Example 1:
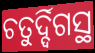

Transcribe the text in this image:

ଚତୁର୍ଦ୍ଦିଗସ୍ଥ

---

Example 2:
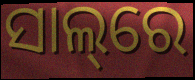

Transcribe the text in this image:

ସାଲ୍‌ରେ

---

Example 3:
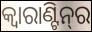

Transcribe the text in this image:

କ୍ବାରାଣ୍ଟିନ୍‌ର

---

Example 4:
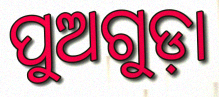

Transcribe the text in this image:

ପୁଅଗୁଡ଼ା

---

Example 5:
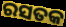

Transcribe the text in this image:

ରସତକ